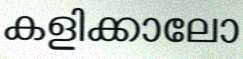
കളിക്കാലോ